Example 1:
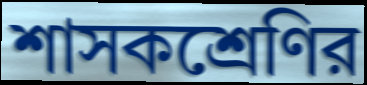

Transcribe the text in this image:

শাসকশ্রেণির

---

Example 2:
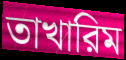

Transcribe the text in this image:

তাখারিম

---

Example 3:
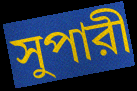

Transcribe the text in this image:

সুপারী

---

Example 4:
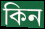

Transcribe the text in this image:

কিন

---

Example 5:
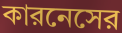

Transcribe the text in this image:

কারনেসের